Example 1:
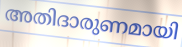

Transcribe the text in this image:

അതിദാരുണമായി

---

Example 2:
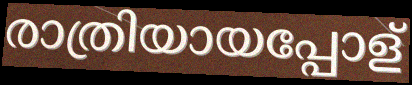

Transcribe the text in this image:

രാത്രിയായപ്പോള്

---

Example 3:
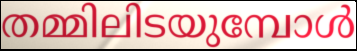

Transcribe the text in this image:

തമ്മിലിടയുമ്പോൾ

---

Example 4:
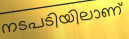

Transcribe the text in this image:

നടപടിയിലാണ്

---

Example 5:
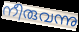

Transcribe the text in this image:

നീരുവന്നു